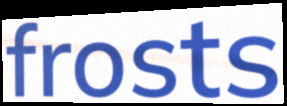
frosts